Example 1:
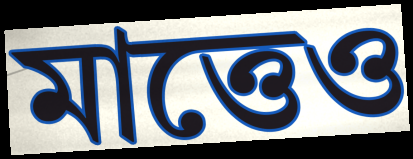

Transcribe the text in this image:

মাত্তেও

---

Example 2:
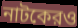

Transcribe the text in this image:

নাটকেরও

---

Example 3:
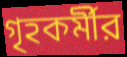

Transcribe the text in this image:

গৃহকর্মীর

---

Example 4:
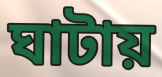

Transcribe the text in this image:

ঘাটায়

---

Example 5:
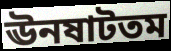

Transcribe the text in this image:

ঊনষাটতম